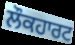
ਲੌਕਹਾਰਟ